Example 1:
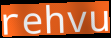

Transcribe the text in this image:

rehvu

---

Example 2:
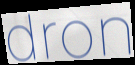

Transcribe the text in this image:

dron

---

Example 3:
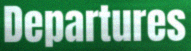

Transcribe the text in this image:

Departures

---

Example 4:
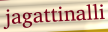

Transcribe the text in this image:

jagattinalli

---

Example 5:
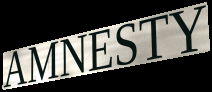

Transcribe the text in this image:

AMNESTY